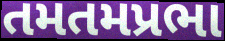
તમતમપ્રભા